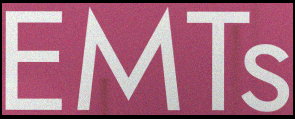
EMTs